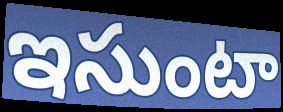
ఇసుంటా